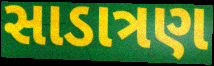
સાડાત્રણ